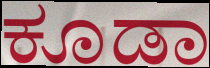
ಕೂಡಾ